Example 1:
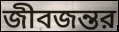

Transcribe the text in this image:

জীবজন্তর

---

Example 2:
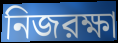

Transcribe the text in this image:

নিজরক্ষা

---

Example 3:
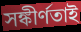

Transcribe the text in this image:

সঙ্কীর্ণতাই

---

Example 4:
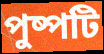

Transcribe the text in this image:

পুষ্পটি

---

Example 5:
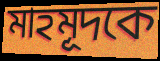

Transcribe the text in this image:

মাহমূদকে